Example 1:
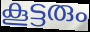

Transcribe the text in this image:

കൂട്ടരും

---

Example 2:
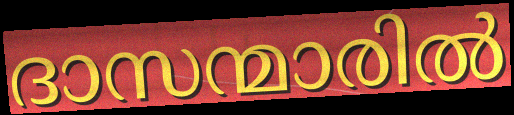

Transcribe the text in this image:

ദാസന്മാരിൽ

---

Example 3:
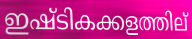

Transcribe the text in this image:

ഇഷ്ടികക്കളത്തില്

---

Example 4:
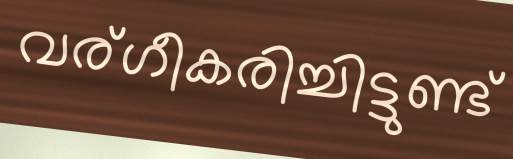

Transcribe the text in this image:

വര്ഗീകരിച്ചിട്ടുണ്ട്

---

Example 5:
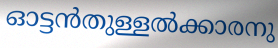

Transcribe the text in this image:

ഓട്ടൻതുള്ളൽക്കാരനു